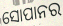
ସୋପାନର